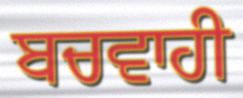
ਬਚਵਾਹੀ